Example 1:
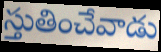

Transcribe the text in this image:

స్తుతించేవాడు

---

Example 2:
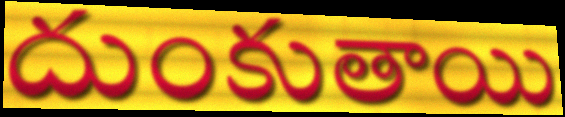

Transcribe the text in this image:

దుంకుతాయి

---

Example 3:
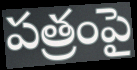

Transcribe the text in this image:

పత్రంపై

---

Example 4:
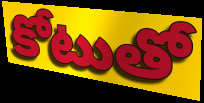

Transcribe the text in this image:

కోటుతో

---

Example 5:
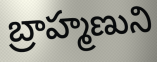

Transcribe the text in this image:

బ్రాహ్మణుని